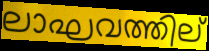
ലാഘവത്തില്